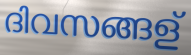
ദിവസങ്ങള്